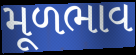
મૂળભાવ